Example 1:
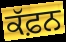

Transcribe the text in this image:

ਕੱਫ਼ਨ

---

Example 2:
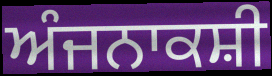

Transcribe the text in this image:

ਅੰਜਨਾਕਸ਼ੀ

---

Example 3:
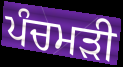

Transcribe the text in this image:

ਪੰਚਮੜੀ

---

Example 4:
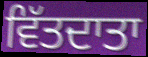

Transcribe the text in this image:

ਵਿੱਤਦਾਤਾ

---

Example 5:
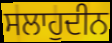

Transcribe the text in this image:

ਸਲਾਹੁਦੀਨ